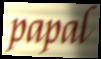
papal